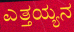
ಎತ್ತಯ್ಯನ